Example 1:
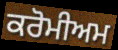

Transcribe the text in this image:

ਕਰੋਮੀਅਮ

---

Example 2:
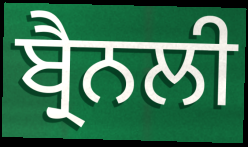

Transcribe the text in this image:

ਬ੍ਰੈਨਲੀ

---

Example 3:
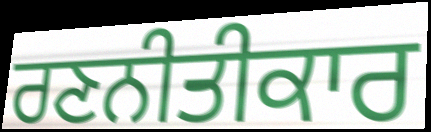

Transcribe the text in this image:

ਰਣਨੀਤੀਕਾਰ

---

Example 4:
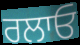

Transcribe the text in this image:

ਰਲਾਓ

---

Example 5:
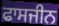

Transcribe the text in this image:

ਫਾਸਜੀਨ